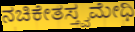
ನಚಿಕೇತಸ್ತ್ವಮೇಧಿ